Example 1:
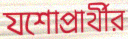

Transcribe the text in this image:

যশোপ্রার্থীর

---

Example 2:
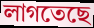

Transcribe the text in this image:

লাগতেছে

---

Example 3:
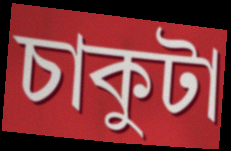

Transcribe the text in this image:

চাকুটা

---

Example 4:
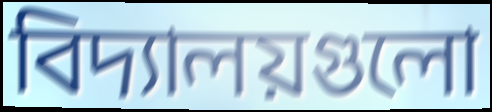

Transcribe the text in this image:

বিদ্যালয়গুলো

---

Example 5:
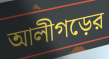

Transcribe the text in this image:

আলীগড়ের